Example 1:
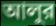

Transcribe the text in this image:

আলুর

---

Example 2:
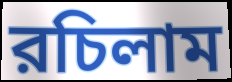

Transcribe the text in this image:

রচিলাম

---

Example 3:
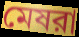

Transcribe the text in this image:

মেষরা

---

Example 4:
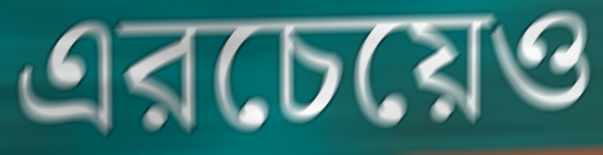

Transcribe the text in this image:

এরচেয়েও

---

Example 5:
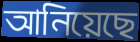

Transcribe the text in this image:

আনিয়েছে